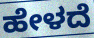
ಹೇಳದೆ